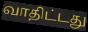
வாதிட்டது